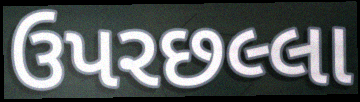
ઉપરછલ્લા